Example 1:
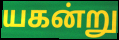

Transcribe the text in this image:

யகன்று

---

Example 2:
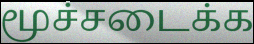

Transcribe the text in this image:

மூச்சடைக்க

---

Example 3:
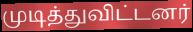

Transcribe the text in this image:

முடித்துவிட்டனர்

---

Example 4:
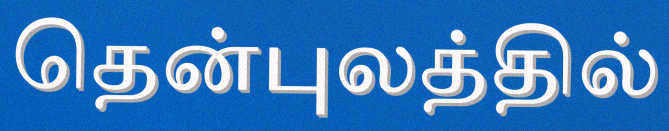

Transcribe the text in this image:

தென்புலத்தில்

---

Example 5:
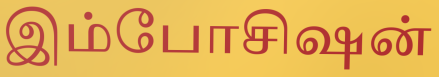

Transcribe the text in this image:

இம்போசிஷன்